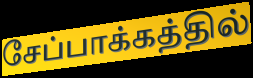
சேப்பாக்கத்தில்